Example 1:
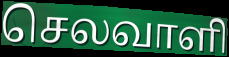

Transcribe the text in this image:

செலவாளி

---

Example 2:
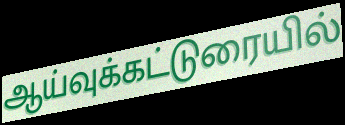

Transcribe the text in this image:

ஆய்வுக்கட்டுரையில்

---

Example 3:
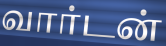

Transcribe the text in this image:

வார்டன்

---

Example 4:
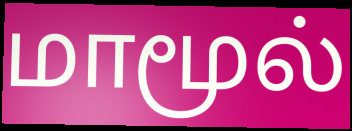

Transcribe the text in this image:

மாமூல்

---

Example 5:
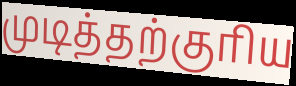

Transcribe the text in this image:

முடித்தற்குரிய